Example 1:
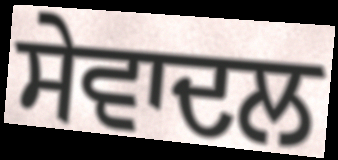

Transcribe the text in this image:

ਸੇਵਾਦਲ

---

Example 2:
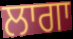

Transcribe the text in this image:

ਲਾਗਾ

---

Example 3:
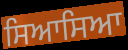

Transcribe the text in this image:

ਸਿਆਸਿਆ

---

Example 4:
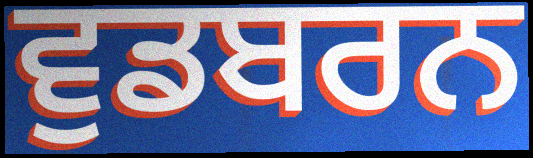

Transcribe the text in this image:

ਵੁਡਬਰਨ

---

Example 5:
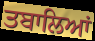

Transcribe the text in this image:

ਤਬਾਲਿਆਂ